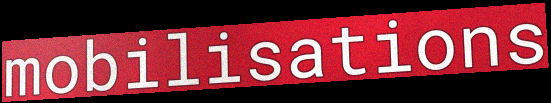
mobilisations